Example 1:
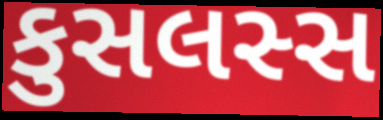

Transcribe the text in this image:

કુસલસ્સ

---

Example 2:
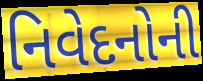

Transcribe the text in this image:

નિવેદનોની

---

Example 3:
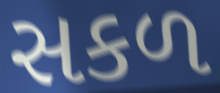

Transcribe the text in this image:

સકળ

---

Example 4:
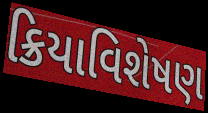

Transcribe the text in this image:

ક્રિયાવિશેષણ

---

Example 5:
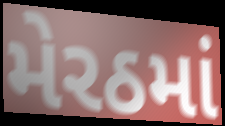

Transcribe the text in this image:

મેરઠમાં